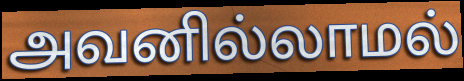
அவனில்லாமல்